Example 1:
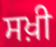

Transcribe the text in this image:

ਸਖ਼ੀ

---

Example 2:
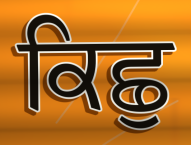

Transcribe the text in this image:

ਕਿਛੁ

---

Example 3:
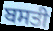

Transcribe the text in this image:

ਬਸਤੀ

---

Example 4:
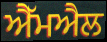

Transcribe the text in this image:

ਐੱਮਐਲ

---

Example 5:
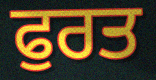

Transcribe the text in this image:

ਫੁਰਤ